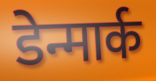
डेन्मार्क